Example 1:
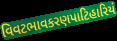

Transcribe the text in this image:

વિવટભાવકરણપાટિહારિયં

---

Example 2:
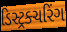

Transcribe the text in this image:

ડિસ્ટ્રક્ચરિંગ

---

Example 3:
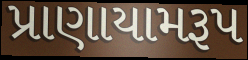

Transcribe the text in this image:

પ્રાણાયામરૂપ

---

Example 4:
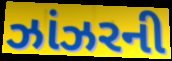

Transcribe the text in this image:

ઝાંઝરની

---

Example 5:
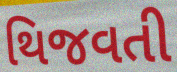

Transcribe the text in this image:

થિજવતી